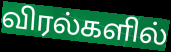
விரல்களில்